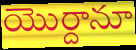
యొర్దానూ